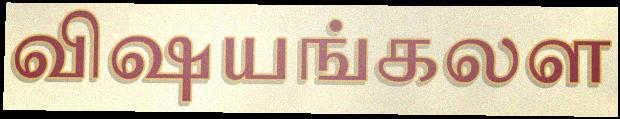
விஷயங்கலள